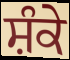
ਸ਼ੰਕੇ